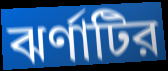
ঝর্ণাটির